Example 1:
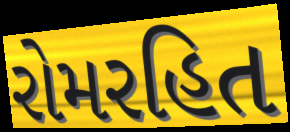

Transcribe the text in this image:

રોમરહિત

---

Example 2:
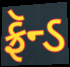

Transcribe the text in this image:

ફ્રૅન્ડ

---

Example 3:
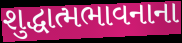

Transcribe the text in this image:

શુદ્ધાત્મભાવનાના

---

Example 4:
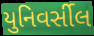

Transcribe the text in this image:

યુનિવર્સીલ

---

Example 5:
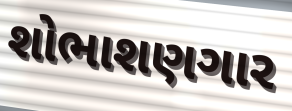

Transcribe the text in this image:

શોભાશણગાર